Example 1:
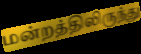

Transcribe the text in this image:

மன்றத்திலிருந்து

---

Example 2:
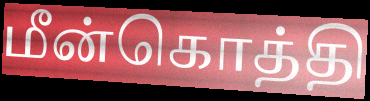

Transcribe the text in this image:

மீன்கொத்தி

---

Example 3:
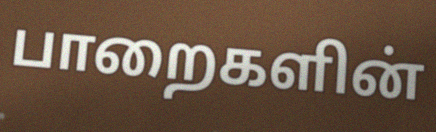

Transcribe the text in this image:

பாறைகளின்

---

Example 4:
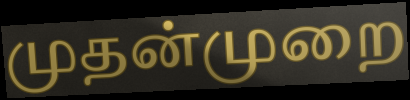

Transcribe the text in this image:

முதன்முறை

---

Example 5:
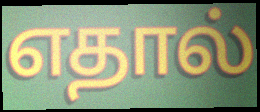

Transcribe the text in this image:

எதால்